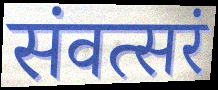
संवत्सरं